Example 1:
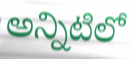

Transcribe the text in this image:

అన్నిటిలో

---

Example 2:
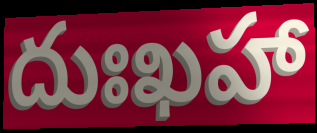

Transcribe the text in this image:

దుఃఖహా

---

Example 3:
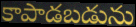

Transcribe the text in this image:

కాపాడబడును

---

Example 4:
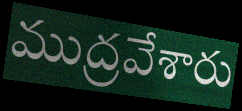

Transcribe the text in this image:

ముద్రవేశారు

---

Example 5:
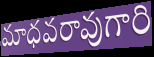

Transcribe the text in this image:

మాధవరావుగారి